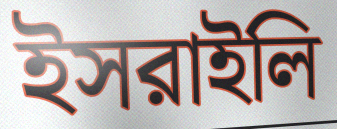
ইসরাইলি